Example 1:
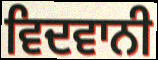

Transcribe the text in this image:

ਵਿਦਵਾਨੀ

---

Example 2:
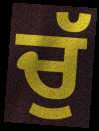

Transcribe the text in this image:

ਚੁੱ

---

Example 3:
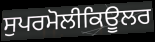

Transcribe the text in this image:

ਸੁਪਰਮੋਲੀਕਿਊਲਰ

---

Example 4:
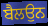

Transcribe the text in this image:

ਬੈਲਉਨ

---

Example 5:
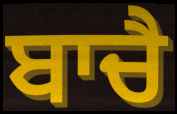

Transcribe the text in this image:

ਬਾਚੈ